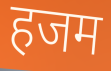
हजम